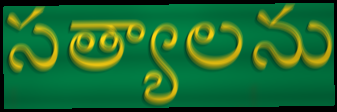
సత్యాలను